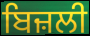
ਬਿਜ਼ਲੀ